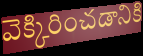
వెక్కిరించడానికి